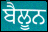
ਬੈਲੂਨ